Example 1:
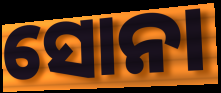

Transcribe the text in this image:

ସୋନା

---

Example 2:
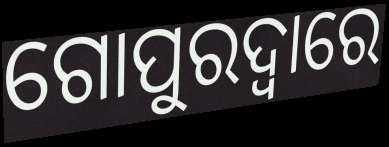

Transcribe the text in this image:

ଗୋପୁରଦ୍ଵାରେ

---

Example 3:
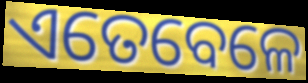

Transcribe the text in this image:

ଏତେବେଳେ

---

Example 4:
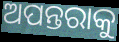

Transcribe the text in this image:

ଅପନ୍ତରାକୁ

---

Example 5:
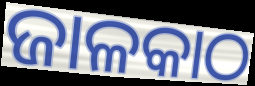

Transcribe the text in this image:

ଜାଳକାଠ